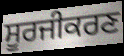
ਸੂਰਜੀਕਰਣ